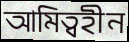
আমিত্বহীন